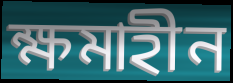
ক্ষমাহীন